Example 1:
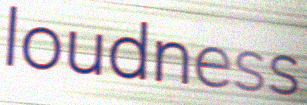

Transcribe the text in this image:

loudness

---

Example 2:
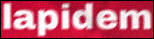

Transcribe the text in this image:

lapidem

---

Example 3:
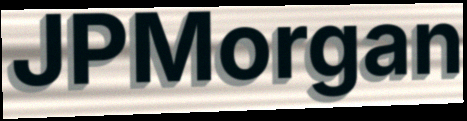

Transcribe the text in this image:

JPMorgan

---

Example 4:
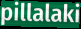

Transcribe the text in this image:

pillalaki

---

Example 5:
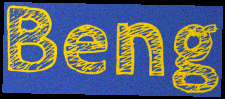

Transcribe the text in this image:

Beng